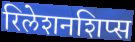
रिलेशनशिप्स